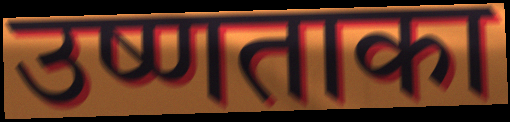
उष्णताका